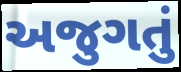
અજુગતું